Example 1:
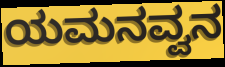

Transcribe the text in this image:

ಯಮನವ್ವನ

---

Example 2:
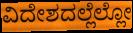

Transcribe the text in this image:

ವಿದೇಶದಲ್ಲೆಲ್ಲೋ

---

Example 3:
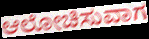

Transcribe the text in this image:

ಆಲೋಚಿಸುವಾಗ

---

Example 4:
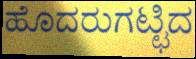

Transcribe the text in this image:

ಹೊದರುಗಟ್ಟಿದ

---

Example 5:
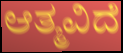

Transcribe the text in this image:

ಆತ್ಮವಿದೆ